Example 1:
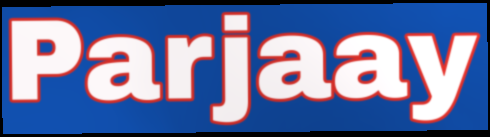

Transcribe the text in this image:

Parjaay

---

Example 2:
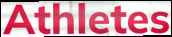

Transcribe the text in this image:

Athletes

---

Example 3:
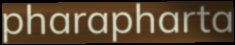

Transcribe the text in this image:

pharapharta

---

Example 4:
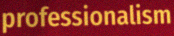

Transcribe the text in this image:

professionalism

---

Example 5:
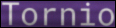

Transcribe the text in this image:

Tornio